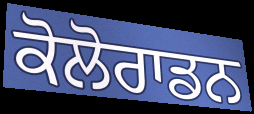
ਕੋਲੋਰਾਡਨ